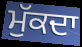
ਮੁੱਕਦਾ